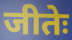
जीतेः